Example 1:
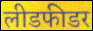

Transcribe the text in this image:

लीडफीडर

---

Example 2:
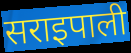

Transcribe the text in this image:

सराइपाली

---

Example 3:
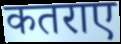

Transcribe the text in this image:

कतराए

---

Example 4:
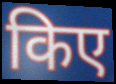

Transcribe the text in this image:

किए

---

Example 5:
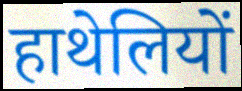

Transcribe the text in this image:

हाथेलियों